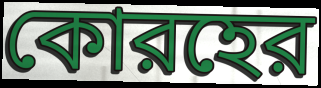
কোরহের